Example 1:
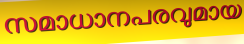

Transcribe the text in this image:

സമാധാനപരവുമായ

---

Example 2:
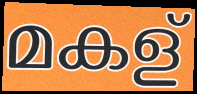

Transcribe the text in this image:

മകള്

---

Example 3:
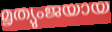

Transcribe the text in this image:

മൃത്യുംജയായ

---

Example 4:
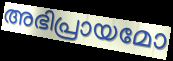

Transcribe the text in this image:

അഭിപ്രായമോ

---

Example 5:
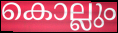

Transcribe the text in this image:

കൊല്ലും